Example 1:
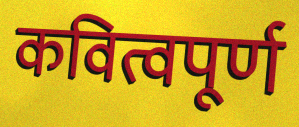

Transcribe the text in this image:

कवित्वपूर्ण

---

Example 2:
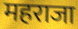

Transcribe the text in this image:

महराजा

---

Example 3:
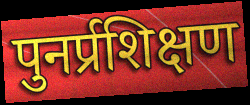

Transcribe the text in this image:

पुनर्प्रशिक्षण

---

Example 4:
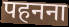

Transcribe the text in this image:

पहनना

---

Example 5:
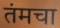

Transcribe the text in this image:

तंमचा